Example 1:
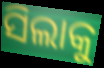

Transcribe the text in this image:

ସିଲାକୁ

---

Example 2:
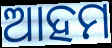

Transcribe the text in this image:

ଆହମ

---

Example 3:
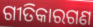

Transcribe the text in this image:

ଗୀତିକାରଗଣ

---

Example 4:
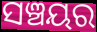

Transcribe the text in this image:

ସଞ୍ଚୟର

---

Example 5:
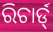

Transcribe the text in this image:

ରିଚାର୍ଡ୍